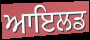
ਆਇਲਡ